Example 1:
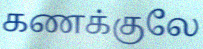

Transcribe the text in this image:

கணக்குலே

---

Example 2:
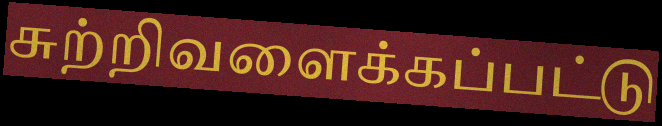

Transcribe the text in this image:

சுற்றிவளைக்கப்பட்டு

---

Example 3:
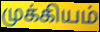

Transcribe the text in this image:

முக்கியம்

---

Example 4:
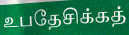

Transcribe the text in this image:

உபதேசிக்கத்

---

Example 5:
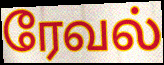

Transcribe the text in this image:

ரேவல்